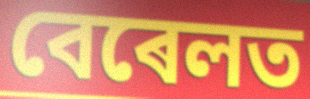
বেৰেলত